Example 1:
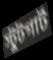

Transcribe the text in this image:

স্টুটগার্ট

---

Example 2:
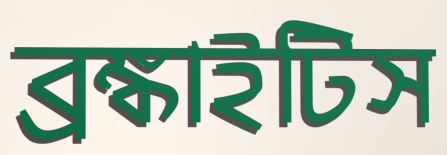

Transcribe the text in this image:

ব্রঙ্কাইটিস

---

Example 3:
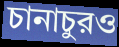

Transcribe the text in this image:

চানাচুরও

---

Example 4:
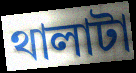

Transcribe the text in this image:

থালাটা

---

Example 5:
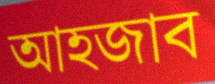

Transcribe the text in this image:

আহজাব